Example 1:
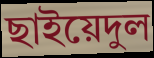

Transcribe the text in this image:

ছাইয়েদুল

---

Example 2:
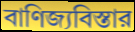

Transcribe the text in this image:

বাণিজ্যবিস্তার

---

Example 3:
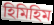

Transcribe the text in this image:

হিমিহিম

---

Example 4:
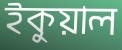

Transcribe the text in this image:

ইকুয়াল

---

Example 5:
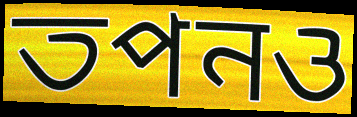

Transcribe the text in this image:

তপনও